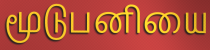
மூடுபனியை